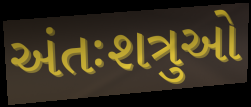
અંતઃશત્રુઓ